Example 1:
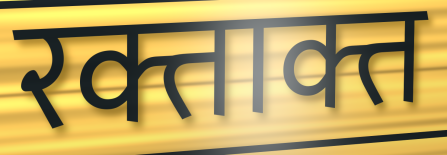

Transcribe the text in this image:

रक्ताक्त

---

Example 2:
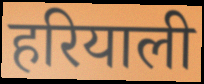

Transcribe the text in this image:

हरियाली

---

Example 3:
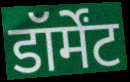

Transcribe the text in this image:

डॉर्मेंट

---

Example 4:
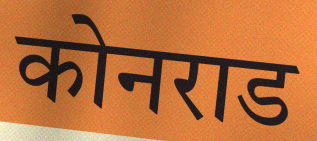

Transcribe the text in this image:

कोनराड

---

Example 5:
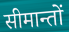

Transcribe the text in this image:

सीमान्तों